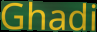
Ghadi